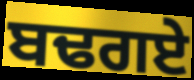
ਬਢਗਏ